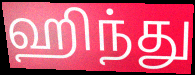
ஹிந்து